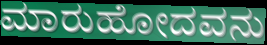
ಮಾರುಹೋದವನು